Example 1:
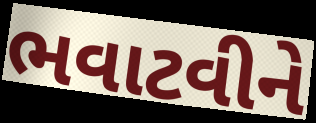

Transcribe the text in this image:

ભવાટવીને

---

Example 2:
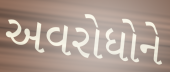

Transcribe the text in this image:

અવરોધોને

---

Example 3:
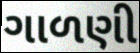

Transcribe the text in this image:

ગાળણી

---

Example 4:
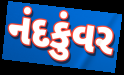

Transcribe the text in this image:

નંદકુંવર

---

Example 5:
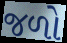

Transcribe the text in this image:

જળો